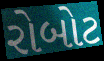
રોબોટ